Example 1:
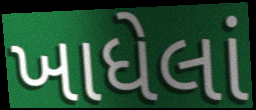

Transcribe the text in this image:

ખાધેલાં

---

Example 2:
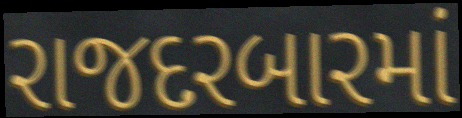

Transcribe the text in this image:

રાજદરબારમાં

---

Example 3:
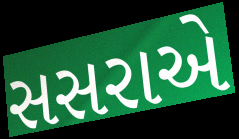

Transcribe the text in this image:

સસરાએ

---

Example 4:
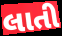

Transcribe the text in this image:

લાતી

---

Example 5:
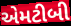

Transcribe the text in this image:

એમટીબી